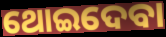
ଥୋଇଦେବା